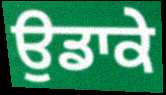
ਉਡਾਕੇ